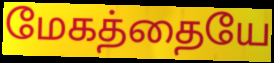
மேகத்தையே